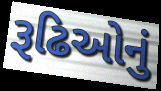
રૂઢિઓનું